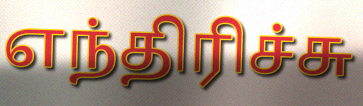
எந்திரிச்சு